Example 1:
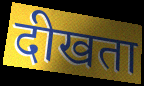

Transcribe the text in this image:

दीखता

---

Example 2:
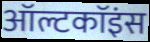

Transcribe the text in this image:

ऑल्टकॉइंस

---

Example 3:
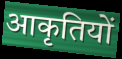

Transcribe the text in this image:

आकृतियों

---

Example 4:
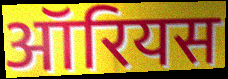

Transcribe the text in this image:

ऑरियस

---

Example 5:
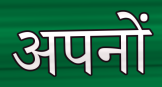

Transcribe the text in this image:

अपनों